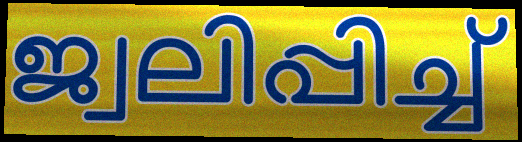
ജ്വലിപ്പിച്ച്